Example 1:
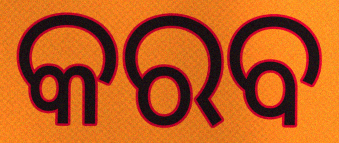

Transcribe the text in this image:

କରବ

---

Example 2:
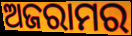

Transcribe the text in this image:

ଅଜରାମର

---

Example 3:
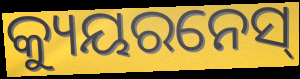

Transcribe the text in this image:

କ୍ୟୁୟରନେସ୍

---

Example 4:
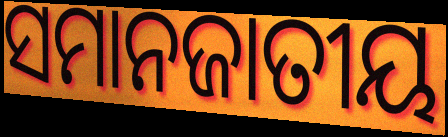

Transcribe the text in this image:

ସମାନଜାତୀୟ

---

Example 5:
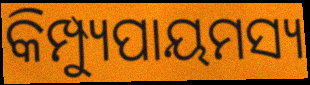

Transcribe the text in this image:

କିମ୍ପ୍ୟୁପାୟମସ୍ୟ